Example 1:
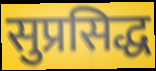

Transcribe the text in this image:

सुप्रसिद्ध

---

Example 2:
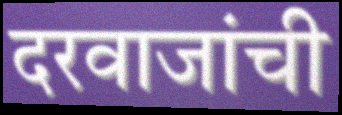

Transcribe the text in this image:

दरवाजांची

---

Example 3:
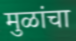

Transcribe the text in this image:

मुळांचा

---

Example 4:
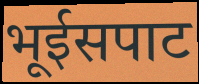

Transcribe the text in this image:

भूईसपाट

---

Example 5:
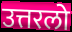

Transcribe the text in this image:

उत्तरलो